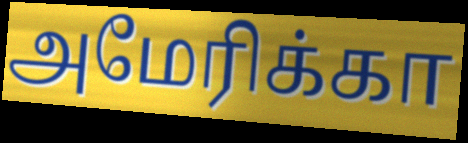
அமேரிக்கா